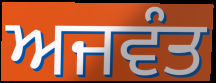
ਅਜਵੰਤ